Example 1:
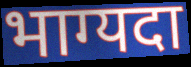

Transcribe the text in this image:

भाग्यदा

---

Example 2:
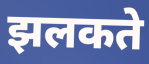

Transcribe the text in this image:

झलकते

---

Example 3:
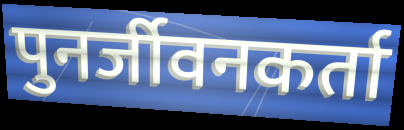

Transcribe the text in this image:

पुनर्जीवनकर्ता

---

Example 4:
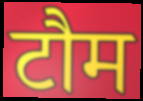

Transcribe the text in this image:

टौम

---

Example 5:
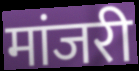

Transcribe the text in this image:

मांजरी